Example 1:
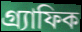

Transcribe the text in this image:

গ্র্যাফিক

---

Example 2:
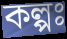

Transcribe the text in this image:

কল্পঃ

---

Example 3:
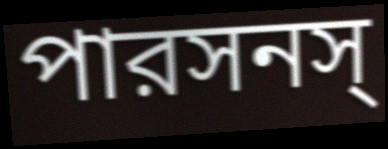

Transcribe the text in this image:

পারসনস্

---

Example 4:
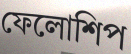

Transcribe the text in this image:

ফেলোশিপ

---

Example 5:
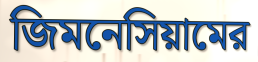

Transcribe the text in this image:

জিমনেসিয়ামের